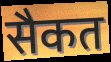
सैकत